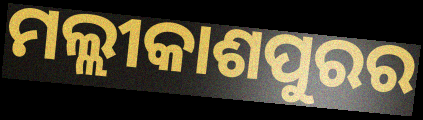
ମଲ୍ଲୀକାଶପୁରର